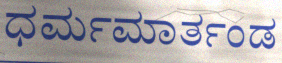
ಧರ್ಮಮಾರ್ತಂಡ